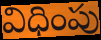
విధింపు